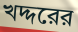
খদ্দরের